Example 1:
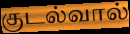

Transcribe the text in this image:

குடல்வால்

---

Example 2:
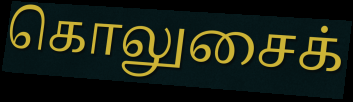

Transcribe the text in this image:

கொலுசைக்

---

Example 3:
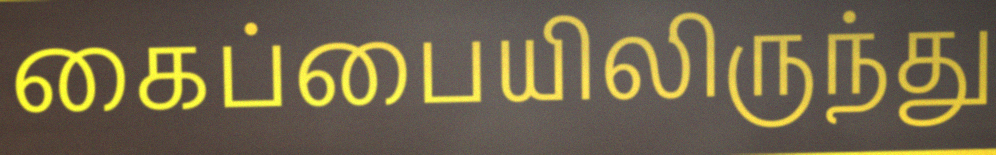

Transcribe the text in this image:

கைப்பையிலிருந்து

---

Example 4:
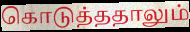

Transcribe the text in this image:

கொடுத்ததாலும்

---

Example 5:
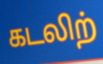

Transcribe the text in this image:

கடலிற்